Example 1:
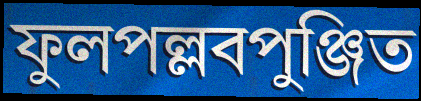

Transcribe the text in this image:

ফুলপল্লবপুঞ্জিত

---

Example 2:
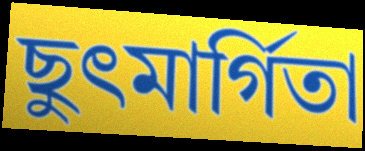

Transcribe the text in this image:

ছুৎমার্গিতা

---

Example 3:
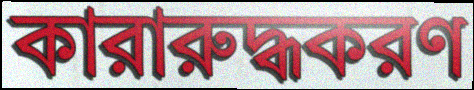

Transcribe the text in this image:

কারারুদ্ধকরণ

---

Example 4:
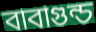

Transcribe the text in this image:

বাবাগুন্ড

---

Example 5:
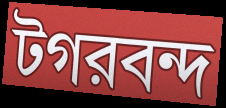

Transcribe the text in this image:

টগরবন্দ